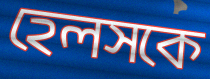
হেলসকে